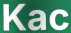
Kac